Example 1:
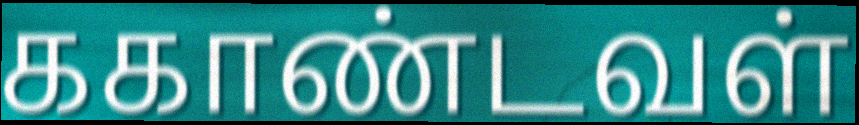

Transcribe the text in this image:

ககாண்டவள்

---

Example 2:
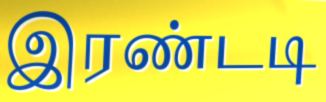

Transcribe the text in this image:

இரண்டடி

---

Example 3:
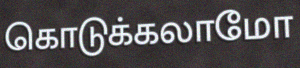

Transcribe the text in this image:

கொடுக்கலாமோ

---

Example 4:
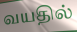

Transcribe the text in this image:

வயதில்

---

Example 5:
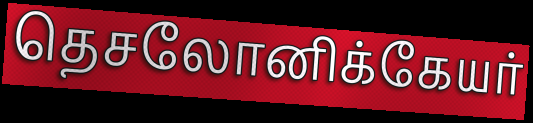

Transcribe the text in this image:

தெசலோனிக்கேயர்